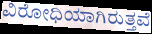
ವಿರೋಧಿಯಾಗಿರುತ್ತವೆ